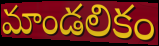
మాండలికం